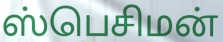
ஸ்பெசிமன்